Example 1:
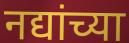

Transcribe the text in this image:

नद्यांच्या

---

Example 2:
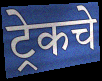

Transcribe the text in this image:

ट्रेकचे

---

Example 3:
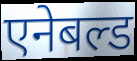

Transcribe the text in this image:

एनेबल्ड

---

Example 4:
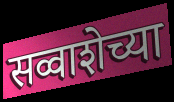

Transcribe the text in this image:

सव्वाशेच्या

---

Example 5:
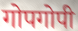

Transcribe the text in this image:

गोपगोपी